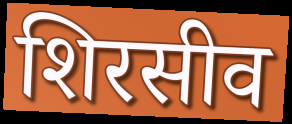
शिरसीव